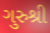
ગુરુશ્રી